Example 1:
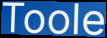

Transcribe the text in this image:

Toole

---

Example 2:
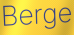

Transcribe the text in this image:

Berge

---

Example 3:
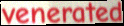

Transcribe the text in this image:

venerated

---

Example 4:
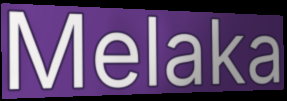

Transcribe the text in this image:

Melaka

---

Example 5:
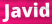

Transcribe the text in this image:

Javid